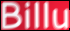
Billu